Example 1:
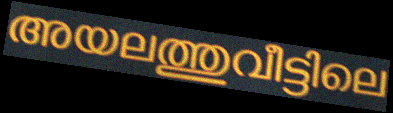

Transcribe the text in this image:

അയലത്തുവീട്ടിലെ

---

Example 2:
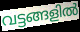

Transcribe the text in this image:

വട്ടങ്ങളിൽ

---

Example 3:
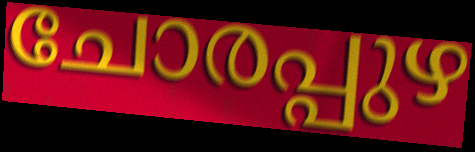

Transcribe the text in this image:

ചോരപ്പുഴ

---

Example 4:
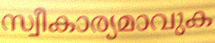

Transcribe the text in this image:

സ്വീകാര്യമാവുക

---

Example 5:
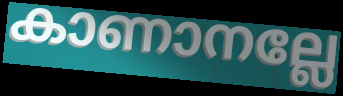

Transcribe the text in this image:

കാണാനല്ലേ